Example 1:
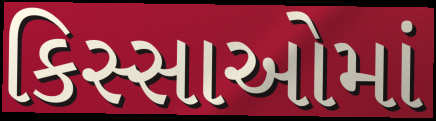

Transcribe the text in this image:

કિસ્સાઓમાં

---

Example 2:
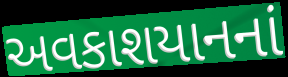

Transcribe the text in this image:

અવકાશયાનનાં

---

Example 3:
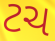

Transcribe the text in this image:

ટચ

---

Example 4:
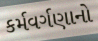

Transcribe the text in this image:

કર્મવર્ગણાનો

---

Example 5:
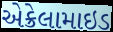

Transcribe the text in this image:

એક્રેલામાઇડ